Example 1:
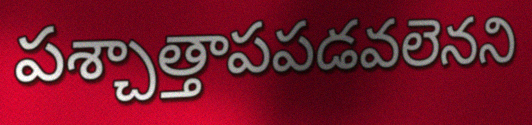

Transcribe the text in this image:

పశ్చాత్తాపపడవలెనని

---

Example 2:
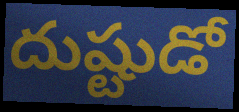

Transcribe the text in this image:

దుష్టుడో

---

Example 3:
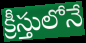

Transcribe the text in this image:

క్రీస్తులోనే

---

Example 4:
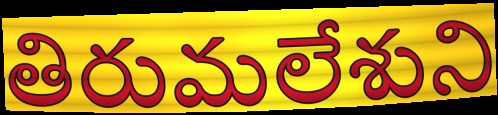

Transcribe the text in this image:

తిరుమలేశుని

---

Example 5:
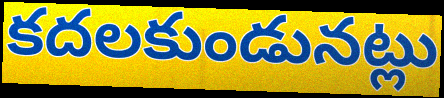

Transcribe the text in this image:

కదలకుండునట్లు